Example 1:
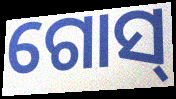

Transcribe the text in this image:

ଗୋସ୍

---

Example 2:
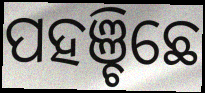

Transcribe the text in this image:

ପହଞ୍ଚିଛେ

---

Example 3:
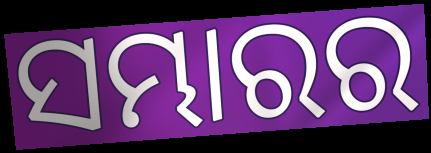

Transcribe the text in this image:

ସମ୍ଭାରର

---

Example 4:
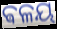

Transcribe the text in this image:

ଵଳୟ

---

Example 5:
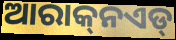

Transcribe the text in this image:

ଆରାକ୍‌ନଏଡ୍